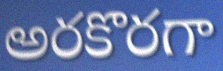
అరకొరగా